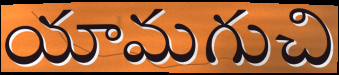
యామగుచి